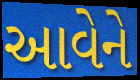
આવેને